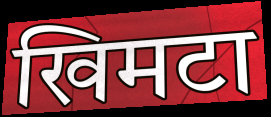
खिमटा